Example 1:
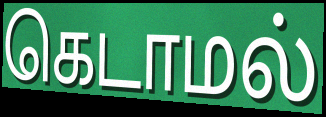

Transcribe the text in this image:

கெடாமல்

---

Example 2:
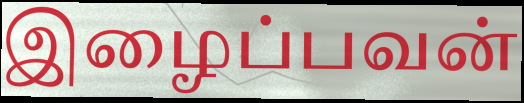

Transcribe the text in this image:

இழைப்பவன்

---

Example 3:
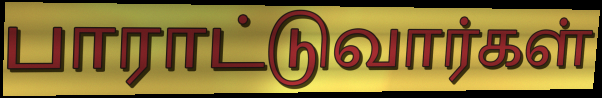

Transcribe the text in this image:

பாராட்டுவார்கள்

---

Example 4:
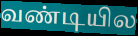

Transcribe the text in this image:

வண்டியில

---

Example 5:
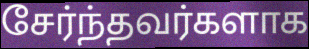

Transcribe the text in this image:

சேர்ந்தவர்களாக